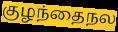
குழந்தைநல